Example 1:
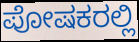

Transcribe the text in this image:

ಪೋಷಕರಲ್ಲಿ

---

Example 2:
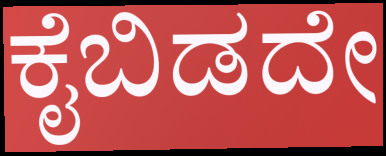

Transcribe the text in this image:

ಕೈಬಿಡದೇ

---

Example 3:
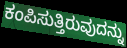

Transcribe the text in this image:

ಕಂಪಿಸುತ್ತಿರುವುದನ್ನು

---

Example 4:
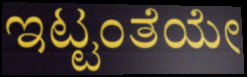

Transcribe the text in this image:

ಇಟ್ಟಂತೆಯೇ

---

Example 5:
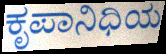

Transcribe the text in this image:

ಕೃಪಾನಿಧಿಯ